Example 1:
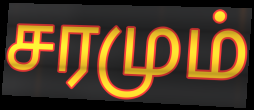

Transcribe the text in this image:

சரமும்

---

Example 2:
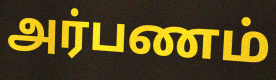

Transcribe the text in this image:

அர்பணம்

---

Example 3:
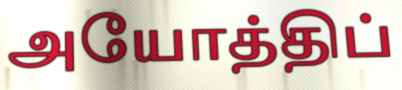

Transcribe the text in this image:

அயோத்திப்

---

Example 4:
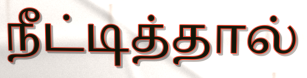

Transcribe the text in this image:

நீட்டித்தால்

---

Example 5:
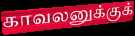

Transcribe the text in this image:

காவலனுக்குக்